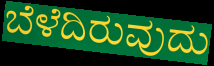
ಬೆಳೆದಿರುವುದು